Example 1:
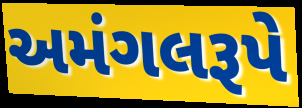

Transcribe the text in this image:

અમંગલરૂપે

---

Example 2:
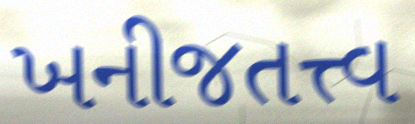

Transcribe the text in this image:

ખનીજતત્ત્વ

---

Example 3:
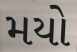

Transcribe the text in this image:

મયો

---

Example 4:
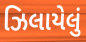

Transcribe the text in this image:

ઝિલાયેલું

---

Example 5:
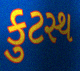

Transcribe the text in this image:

કુટસ્થ